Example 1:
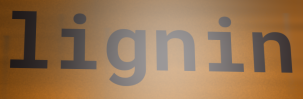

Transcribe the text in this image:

lignin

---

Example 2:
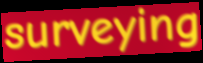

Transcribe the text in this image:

surveying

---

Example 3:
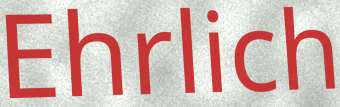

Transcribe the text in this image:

Ehrlich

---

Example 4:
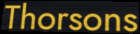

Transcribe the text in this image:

Thorsons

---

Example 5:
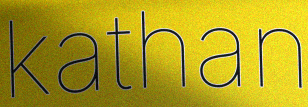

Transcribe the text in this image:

kathan